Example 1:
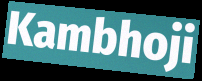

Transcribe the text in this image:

Kambhoji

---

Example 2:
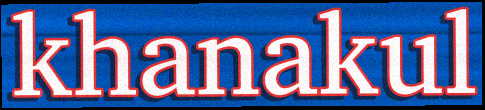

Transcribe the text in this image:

khanakul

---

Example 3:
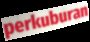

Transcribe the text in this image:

perkuburan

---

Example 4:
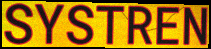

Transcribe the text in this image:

SYSTREN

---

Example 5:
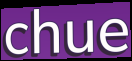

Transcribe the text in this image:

chue